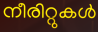
നീരിറ്റുകൾ